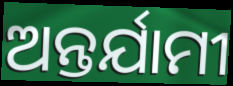
ଅନ୍ତର୍ଯାମୀ